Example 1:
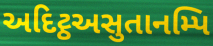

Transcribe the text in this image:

અદિટ્ઠઅસુતાનમ્પિ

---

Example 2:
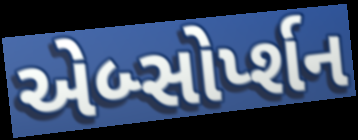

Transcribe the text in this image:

એબ્સોર્પ્શન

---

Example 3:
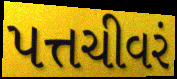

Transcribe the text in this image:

પત્તચીવરં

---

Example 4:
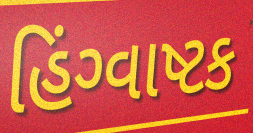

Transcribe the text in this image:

હિંગ્વાષ્ટક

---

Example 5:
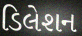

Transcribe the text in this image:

ડિલેશન